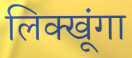
लिक्खूंगा